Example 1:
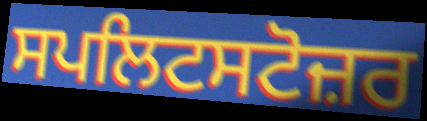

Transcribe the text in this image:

ਸਪਲਿਟਸਟੋਜ਼ਰ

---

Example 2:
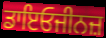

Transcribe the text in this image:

ਡਾਇਓਜੀਨਜ਼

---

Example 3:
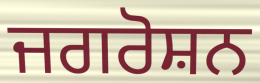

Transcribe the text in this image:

ਜਗਰੋਸ਼ਨ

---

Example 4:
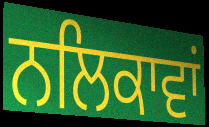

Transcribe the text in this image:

ਨਲਿਕਾਵਾਂ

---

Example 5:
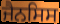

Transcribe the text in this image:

ਜੈਨਸਿਸ